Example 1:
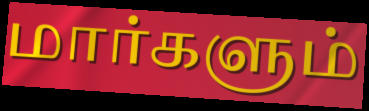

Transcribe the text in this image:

மார்களும்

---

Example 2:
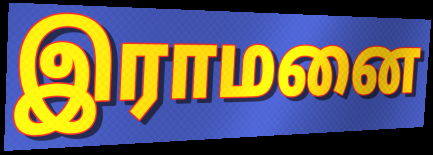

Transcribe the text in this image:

இராமனை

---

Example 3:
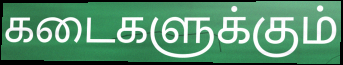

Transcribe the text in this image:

கடைகளுக்கும்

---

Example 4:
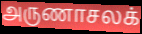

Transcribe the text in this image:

அருணாசலக்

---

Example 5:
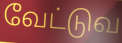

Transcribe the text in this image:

வேட்டுவ